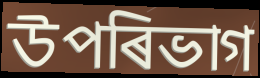
উপৰিভাগ